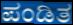
ಪಂಡಿತ